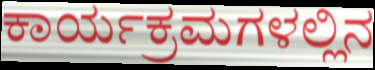
ಕಾರ್ಯಕ್ರಮಗಳಲ್ಲಿನ